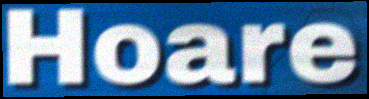
Hoare